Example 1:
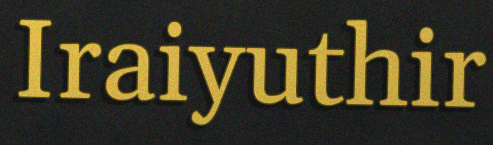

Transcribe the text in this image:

Iraiyuthir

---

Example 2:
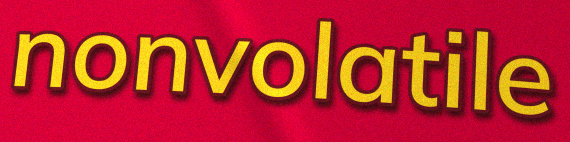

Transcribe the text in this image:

nonvolatile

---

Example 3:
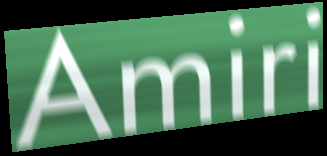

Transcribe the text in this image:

Amiri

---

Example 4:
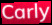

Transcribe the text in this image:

Carly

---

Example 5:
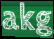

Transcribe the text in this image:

akg